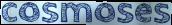
cosmoses